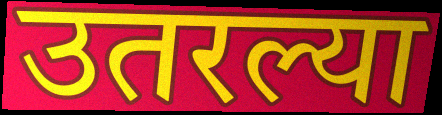
उतरल्या